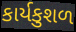
કાર્યકુશળ